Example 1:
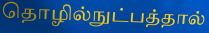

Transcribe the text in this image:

தொழில்நுட்பத்தால்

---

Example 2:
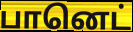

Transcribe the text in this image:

பானெட்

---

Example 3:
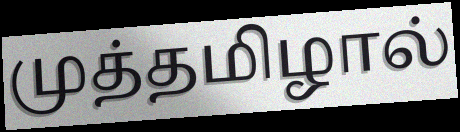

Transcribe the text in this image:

முத்தமிழால்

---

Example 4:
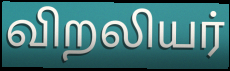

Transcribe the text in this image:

விறலியர்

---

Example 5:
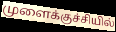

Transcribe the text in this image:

முளைக்குச்சியில்